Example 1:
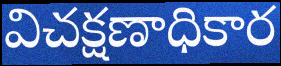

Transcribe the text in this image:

విచక్షణాధికార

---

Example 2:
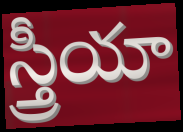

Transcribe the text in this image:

స్త్రీయా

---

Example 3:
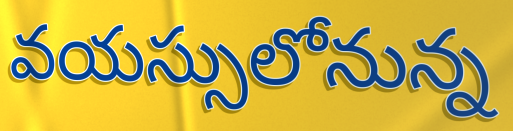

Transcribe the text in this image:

వయస్సులోనున్న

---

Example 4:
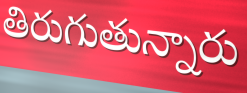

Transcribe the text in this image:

తిరుగుతున్నారు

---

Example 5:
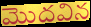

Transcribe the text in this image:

మొదవిన